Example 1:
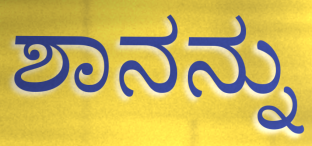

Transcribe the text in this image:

ಶಾನನ್ನು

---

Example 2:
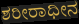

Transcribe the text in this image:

ಶರೀರಾಧೀನ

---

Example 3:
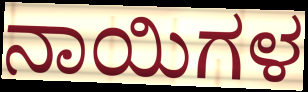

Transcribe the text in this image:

ನಾಯಿಗಳ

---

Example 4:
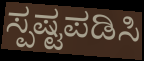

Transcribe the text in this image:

ಸ್ಪಷ್ಟಪಡಿಸಿ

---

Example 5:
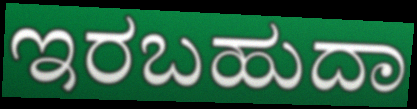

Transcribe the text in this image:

ಇರಬಹುದಾ